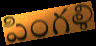
పింగళి